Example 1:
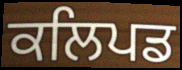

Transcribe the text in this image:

ਕਲਿਪਡ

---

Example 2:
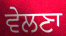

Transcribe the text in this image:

ਵੇਲਣਾ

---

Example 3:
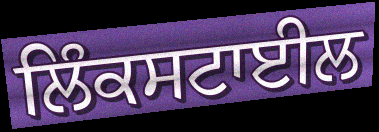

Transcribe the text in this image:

ਲਿੰਕਸਟਾਈਲ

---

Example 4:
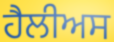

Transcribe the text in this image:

ਹੈਲੀਅਸ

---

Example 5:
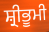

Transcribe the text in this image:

ਸ਼੍ਰੀਭੂਮੀ